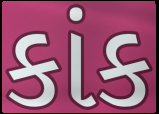
કાંક